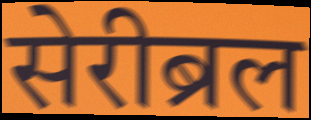
सेरीब्रल